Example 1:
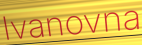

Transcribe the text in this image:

Ivanovna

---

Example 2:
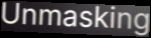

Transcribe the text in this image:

Unmasking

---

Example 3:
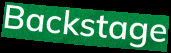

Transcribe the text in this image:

Backstage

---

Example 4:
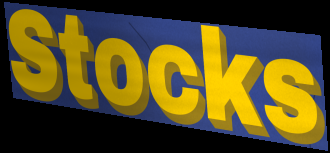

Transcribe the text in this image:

Stocks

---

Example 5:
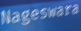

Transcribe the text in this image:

Nageswara